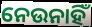
ନେଉନାହିଁ